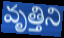
వృత్తిని